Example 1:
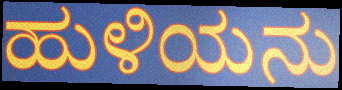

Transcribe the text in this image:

ಹುಳಿಯನು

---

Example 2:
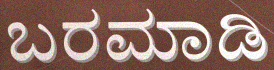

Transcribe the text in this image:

ಬರಮಾಡಿ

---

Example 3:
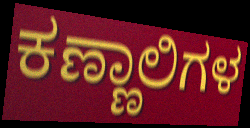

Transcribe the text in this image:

ಕಣ್ಣಾಲಿಗಳ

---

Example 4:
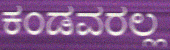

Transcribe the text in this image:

ಕಂಡವರಲ್ಲ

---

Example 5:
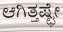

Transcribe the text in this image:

ಆಗಿತ್ತಷ್ಟೇ